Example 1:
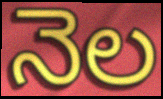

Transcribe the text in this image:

నెల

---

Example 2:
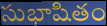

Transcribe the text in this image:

సుభాషితం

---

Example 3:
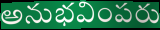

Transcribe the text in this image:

అనుభవింపరు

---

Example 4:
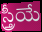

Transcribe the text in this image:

స్త్రీయే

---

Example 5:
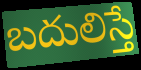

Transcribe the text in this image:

బదులిస్తే